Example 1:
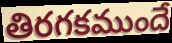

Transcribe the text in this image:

తిరగకముందే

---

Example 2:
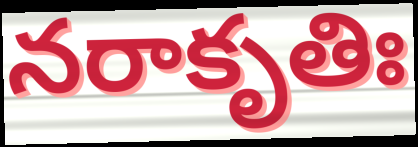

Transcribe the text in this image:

నరాకృతిః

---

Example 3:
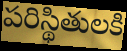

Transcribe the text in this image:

పరిస్థితులకి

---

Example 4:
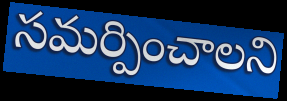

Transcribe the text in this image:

సమర్పించాలని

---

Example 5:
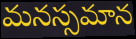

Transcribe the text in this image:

మనస్సమాన